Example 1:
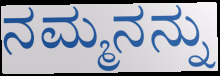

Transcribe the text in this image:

ನಮ್ಮನನ್ನು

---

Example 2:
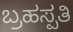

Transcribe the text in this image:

ಬ್ರಹಸ್ಪತಿ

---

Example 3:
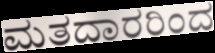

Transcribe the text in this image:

ಮತದಾರರಿಂದ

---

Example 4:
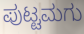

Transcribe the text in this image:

ಪುಟ್ಟಮಗು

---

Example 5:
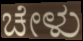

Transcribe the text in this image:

ಚೇಳು